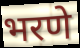
भरणे